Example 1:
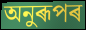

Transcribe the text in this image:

অনুৰূপৰ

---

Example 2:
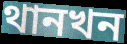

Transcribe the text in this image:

থানখন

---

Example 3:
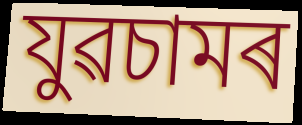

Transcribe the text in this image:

যুৱচামৰ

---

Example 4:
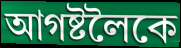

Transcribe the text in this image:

আগষ্টলৈকে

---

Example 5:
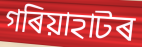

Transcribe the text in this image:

গৰিয়াহাটৰ